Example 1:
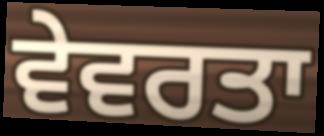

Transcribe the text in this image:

ਵੇਵਰਤਾ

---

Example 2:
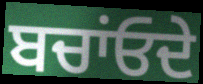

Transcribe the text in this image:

ਬਚਾਂਓਦੇ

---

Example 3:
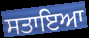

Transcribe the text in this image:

ਸਤਾਇਆ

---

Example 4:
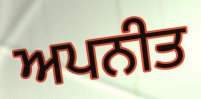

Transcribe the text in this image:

ਅਪਨੀਤ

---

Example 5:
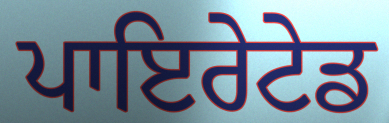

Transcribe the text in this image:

ਪਾਇਰੇਟੇਡ